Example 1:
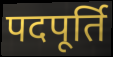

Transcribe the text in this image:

पदपूर्ति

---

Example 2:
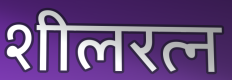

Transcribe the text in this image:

शीलरत्न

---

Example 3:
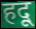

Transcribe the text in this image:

हदू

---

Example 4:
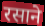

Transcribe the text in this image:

रसाने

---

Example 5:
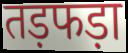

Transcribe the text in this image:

तड़फड़ा